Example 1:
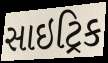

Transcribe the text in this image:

સાઇટ્રિક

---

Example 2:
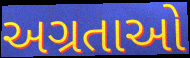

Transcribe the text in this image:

અગ્રતાઓ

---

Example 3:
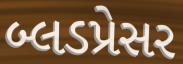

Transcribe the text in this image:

બ્લડપ્રેસર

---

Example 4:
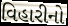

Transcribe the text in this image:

વિહારીનો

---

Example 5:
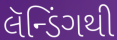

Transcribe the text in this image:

લૅન્ડિંગથી